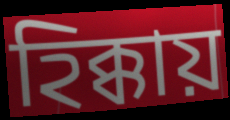
হিক্কায়